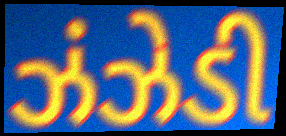
ઝંઝેડી